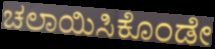
ಚಲಾಯಿಸಿಕೊಂಡೇ